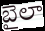
బైలా